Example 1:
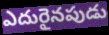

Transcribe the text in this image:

ఎదురైనపుడు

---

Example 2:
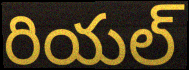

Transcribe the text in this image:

రియల్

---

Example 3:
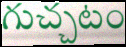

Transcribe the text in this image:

గుచ్చటం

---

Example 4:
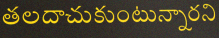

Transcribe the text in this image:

తలదాచుకుంటున్నారని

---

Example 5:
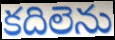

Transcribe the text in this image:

కదిలెను